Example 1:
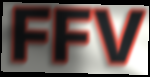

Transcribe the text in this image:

FFV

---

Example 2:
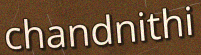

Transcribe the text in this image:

chandnithi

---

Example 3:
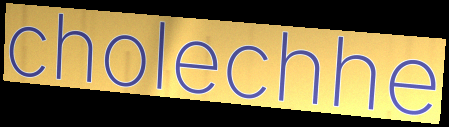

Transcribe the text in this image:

cholechhe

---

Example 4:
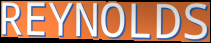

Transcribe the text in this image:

REYNOLDS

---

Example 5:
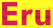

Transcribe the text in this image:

Eru